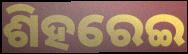
ଶିହରେଇ